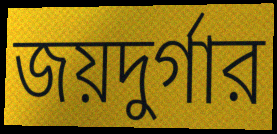
জয়দুর্গার